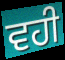
ਵਹੀ